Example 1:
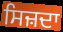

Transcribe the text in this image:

ਸਿਜ਼ਦਾ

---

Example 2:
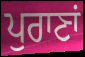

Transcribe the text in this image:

ਪੁਰਾਣਾਂ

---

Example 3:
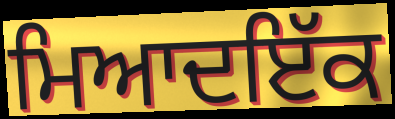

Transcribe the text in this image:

ਮਿਆਦਇੱਕ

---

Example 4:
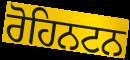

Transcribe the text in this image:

ਰੋਹਿਨਟਨ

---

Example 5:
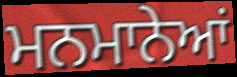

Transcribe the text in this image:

ਮਨਮਾਨੇਆਂ